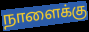
நாளைக்கு